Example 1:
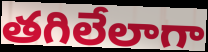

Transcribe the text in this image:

తగిలేలాగా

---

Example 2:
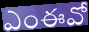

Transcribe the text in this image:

ఎంఈవో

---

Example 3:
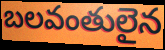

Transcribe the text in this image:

బలవంతులైన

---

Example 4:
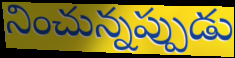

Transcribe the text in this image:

నించున్నప్పుడు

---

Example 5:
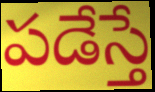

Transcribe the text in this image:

పడేస్తే